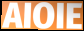
AIOIE